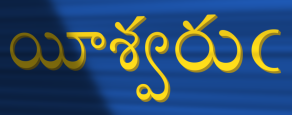
యీశ్వరుఁ